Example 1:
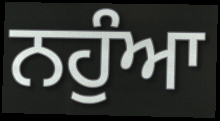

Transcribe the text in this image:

ਨਹੁੰਆ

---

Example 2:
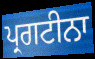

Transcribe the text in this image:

ਪ੍ਰਗਟੀਨਾ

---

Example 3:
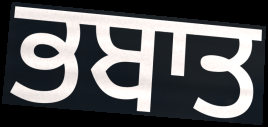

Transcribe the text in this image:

ਭਬਾਤ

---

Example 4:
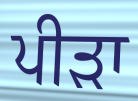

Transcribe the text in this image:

ਪੀੜਾ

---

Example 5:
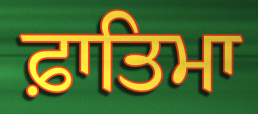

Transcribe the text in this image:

ਫ਼ਾਤਿਮਾ